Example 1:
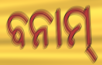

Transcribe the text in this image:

ବନାମ୍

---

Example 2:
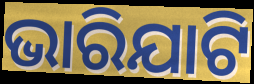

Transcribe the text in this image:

ଭାରିଯାଟି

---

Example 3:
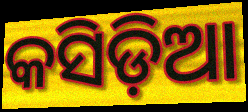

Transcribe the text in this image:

କସିଡ଼ିଆ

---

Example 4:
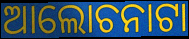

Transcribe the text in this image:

ଆଲୋଚନାଟା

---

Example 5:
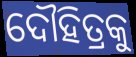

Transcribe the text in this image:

ଦୌହିତ୍ରକୁ